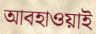
আবহাওয়াই